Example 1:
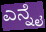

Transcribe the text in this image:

ಎನ್ನೈ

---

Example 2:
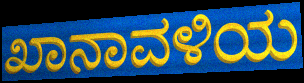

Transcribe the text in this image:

ಖಾನಾವಳಿಯ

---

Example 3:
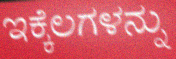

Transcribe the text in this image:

ಇಕ್ಕೆಲಗಳನ್ನು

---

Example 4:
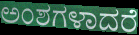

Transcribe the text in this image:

ಅಂಶಗಳಾದರೆ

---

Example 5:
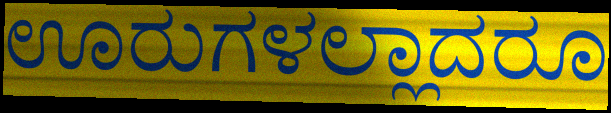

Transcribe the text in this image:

ಊರುಗಳಲ್ಲಾದರೂ